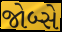
જોબ્સે